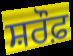
ਸ਼ਰੌਫ਼